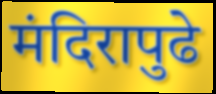
मंदिरापुढे